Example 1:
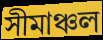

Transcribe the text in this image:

সীমাঞ্চল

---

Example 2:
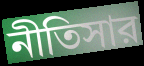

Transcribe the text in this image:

নীতিসার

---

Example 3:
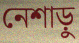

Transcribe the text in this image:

নেশাড়ু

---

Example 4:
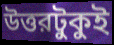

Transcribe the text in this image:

উত্তরটুকুই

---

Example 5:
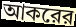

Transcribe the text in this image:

আকরের